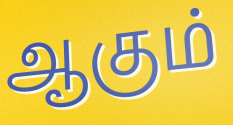
ஆகும்